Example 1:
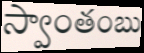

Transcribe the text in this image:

స్వాంతంబు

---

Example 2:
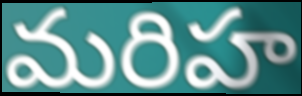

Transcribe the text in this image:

మరిహ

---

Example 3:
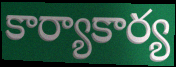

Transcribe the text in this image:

కార్యాకార్య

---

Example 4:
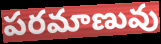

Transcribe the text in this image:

పరమాణువు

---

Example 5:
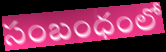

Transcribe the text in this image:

సంబంధంలో